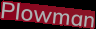
Plowman